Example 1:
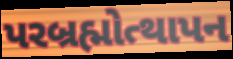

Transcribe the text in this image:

પરબ્રહ્મોત્થાપન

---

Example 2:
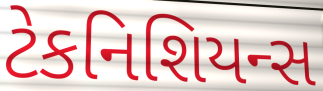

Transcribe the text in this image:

ટેકનિશિયન્સ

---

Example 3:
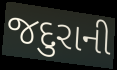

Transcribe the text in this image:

જદુરાની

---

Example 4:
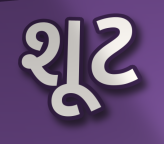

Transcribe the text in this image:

શૂટ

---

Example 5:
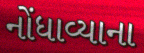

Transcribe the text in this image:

નોંધાવ્યાના